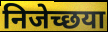
निजेच्छया